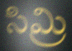
సిమ్రి